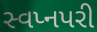
સ્વપ્નપરી